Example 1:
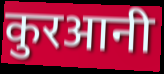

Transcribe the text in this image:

कुरआनी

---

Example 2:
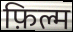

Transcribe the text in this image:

फ़िल्म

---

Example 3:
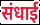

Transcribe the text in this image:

संधाई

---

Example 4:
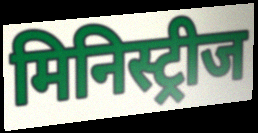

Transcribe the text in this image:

मिनिस्ट्रीज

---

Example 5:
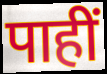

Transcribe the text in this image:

पाहीं